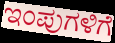
ಇಂಪುಗಳಿಗೆ